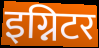
इग्निटर